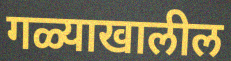
गळ्याखालील